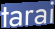
tarai